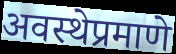
अवस्थेप्रमाणे